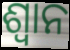
ଶ୍ଵାନ